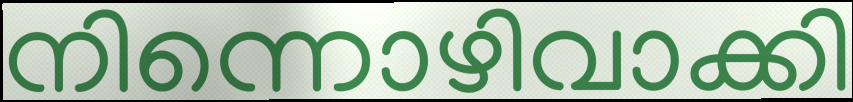
നിന്നൊഴിവാക്കി